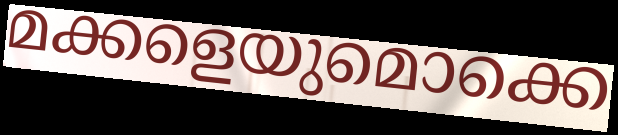
മക്കളെയുമൊക്കെ